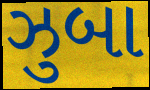
ઝુબા